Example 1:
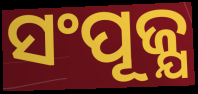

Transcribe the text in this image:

ସଂପୂଜ୍ଯ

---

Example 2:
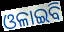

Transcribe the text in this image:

ଓଳାଇବି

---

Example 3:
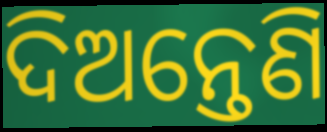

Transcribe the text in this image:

ଦିଅନ୍ତେଣି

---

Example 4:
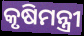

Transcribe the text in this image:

କୃଷିମନ୍ତ୍ରୀ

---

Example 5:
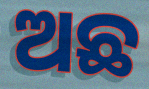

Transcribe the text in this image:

ଅଛ